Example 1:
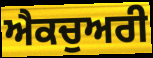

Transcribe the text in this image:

ਐਕਚੁਅਰੀ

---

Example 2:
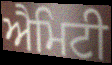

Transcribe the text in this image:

ਐਮਿਟੀ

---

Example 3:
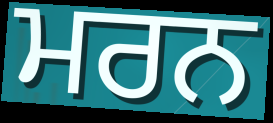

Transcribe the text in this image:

ਮਰਨ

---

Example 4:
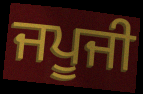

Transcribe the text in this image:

ਜਪੂਜੀ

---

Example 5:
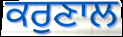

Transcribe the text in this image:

ਕਰੁਣਾਲ